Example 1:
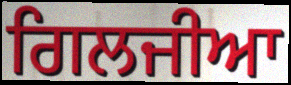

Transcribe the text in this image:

ਗਿਲਜੀਆ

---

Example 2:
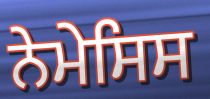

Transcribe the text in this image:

ਨੇਮੇਸਿਸ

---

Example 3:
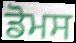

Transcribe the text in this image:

ਡੋਮਸ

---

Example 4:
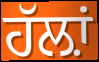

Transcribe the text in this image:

ਹੱਲ਼ਾਂ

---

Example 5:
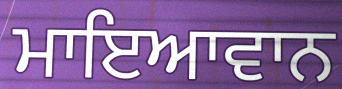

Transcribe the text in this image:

ਮਾਇਆਵਾਨ